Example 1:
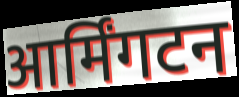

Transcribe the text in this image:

आर्मिंगटन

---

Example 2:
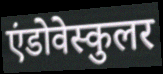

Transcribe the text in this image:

एंडोवेस्कुलर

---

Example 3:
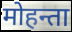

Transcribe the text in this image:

मोहन्ता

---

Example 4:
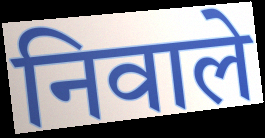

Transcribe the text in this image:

निवाले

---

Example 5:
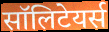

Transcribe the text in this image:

सॉलिटेयर्स